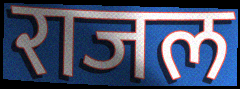
राजल